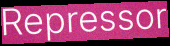
Repressor